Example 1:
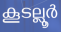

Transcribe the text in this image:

കൂടല്ലൂർ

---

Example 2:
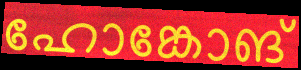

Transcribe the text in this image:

ഹോങ്കോങ്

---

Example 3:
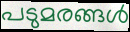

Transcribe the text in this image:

പടുമരങ്ങൾ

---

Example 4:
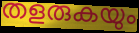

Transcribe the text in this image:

തളരുകയും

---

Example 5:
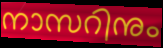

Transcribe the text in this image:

നാസറിനും